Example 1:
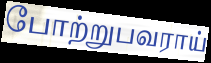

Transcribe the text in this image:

போற்றுபவராய்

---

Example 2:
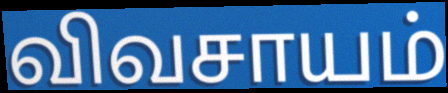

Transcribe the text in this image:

விவசாயம்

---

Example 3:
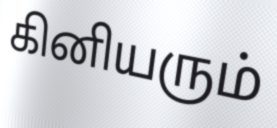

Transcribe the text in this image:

கினியரும்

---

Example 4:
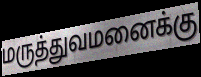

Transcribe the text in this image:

மருத்துவமனைக்கு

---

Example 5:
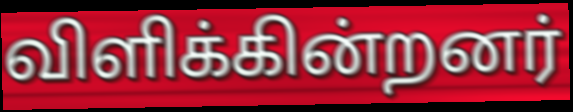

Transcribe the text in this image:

விளிக்கின்றனர்